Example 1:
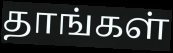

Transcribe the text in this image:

தாங்கள்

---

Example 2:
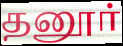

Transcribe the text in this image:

தனூர்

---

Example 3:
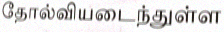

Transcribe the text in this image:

தோல்வியடைந்துள்ள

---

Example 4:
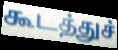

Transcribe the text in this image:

கூடத்துச்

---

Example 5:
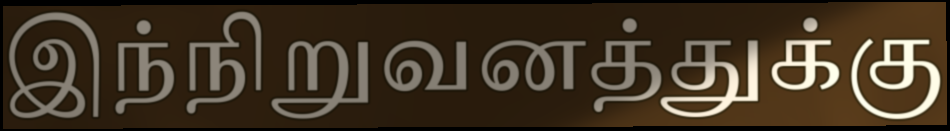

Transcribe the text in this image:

இந்நிறுவனத்துக்கு